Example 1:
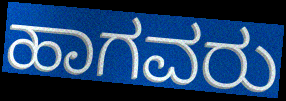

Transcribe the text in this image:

ಹಾಗವರು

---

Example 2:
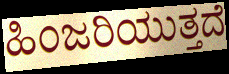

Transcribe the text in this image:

ಹಿಂಜರಿಯುತ್ತದೆ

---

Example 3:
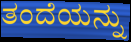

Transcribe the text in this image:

ತಂದೆಯನ್ನು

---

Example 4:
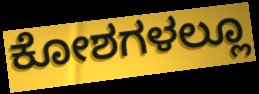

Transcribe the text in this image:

ಕೋಶಗಳಲ್ಲೂ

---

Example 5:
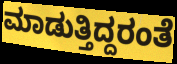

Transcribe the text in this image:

ಮಾಡುತ್ತಿದ್ದರಂತೆ